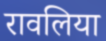
रावलिया